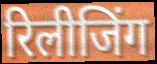
रिलीजिंग